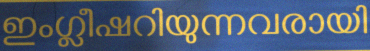
ഇംഗ്ലീഷറിയുന്നവരായി